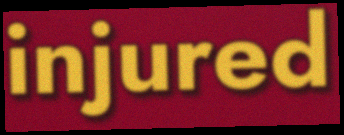
injured